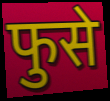
फुसे